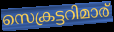
സെക്രട്ടറിമാര്